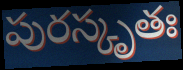
పురస్కృతః